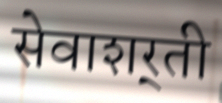
सेवाशर्ती